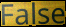
False